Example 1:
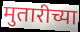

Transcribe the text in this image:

मुतारीच्या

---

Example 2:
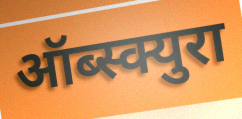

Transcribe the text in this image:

ऑब्स्क्युरा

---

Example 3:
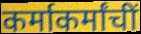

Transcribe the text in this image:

कर्माकर्मांचीं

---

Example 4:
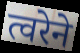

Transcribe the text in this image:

त्वरेने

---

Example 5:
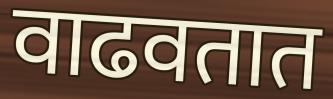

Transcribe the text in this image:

वाढवतात